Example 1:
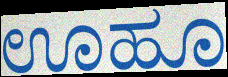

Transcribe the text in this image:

ಊಹೂ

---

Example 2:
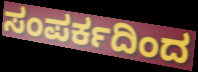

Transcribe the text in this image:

ಸಂಪರ್ಕದಿಂದ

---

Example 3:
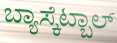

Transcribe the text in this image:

ಬ್ಯಾಸ್ಕೆಟ್ಬಾಲ್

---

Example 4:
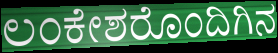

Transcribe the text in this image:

ಲಂಕೇಶರೊಂದಿಗಿನ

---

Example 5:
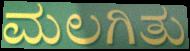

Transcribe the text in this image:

ಮಲಗಿತು